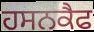
ਹਸਨਕੈਫ